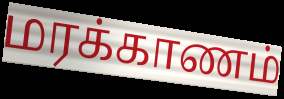
மரக்காணம்